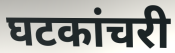
घटकांचरी